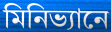
মিনিভ্যানে